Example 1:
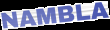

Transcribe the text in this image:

NAMBLA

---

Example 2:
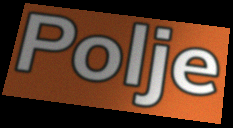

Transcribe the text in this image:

Polje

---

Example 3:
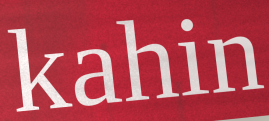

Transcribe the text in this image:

kahin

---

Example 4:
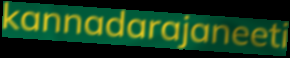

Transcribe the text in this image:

kannadarajaneeti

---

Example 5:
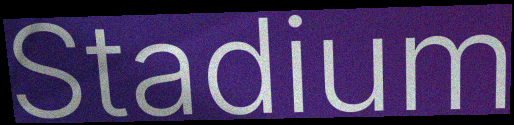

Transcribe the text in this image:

Stadium